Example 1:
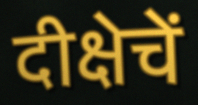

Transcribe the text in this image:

दीक्षेचें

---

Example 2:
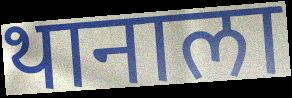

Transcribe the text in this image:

थानाला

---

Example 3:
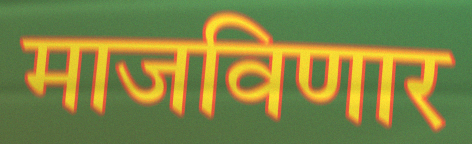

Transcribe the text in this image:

माजविणार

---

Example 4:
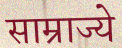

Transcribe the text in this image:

साम्राज्ये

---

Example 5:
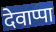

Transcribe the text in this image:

देवाप्पा